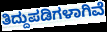
ತಿದ್ದುಪಡಿಗಳಾಗಿವೆ